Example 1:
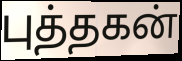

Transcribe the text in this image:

புத்தகன்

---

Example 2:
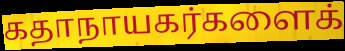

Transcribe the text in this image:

கதாநாயகர்களைக்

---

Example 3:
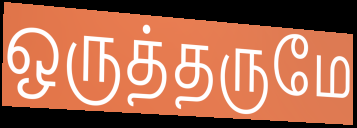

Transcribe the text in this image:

ஒருத்தருமே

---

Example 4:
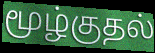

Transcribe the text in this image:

மூழ்குதல்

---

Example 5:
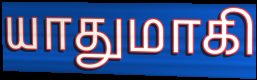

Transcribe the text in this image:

யாதுமாகி